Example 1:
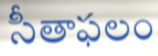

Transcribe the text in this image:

సీతాఫలం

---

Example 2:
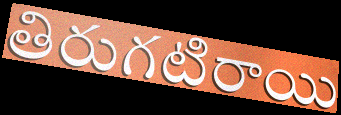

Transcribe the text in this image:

తిరుగటిరాయి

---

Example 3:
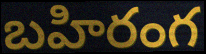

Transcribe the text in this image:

బహిరంగ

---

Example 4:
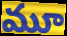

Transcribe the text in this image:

మూ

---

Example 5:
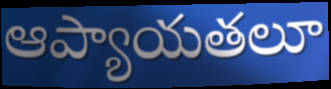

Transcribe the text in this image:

ఆప్యాయతలూ